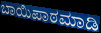
ಬಾಯಿಪಾಠಮಾಡಿ